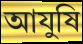
আযুষি